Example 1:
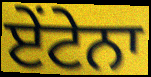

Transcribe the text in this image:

ਏਂਟੇਨਾ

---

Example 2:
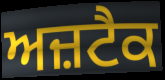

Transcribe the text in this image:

ਅਜ਼ਟੈਕ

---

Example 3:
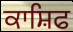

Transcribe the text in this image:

ਕਾਸ਼ਿਫ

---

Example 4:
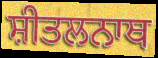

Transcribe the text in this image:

ਸ਼ੀਤਲਨਾਥ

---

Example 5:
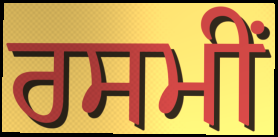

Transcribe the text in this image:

ਰਸਮੀਂ